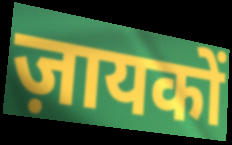
ज़ायकों